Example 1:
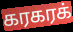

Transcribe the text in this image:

கரகரக்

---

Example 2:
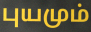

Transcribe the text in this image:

புயமும்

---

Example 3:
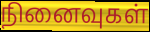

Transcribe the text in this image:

நினைவுகள்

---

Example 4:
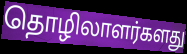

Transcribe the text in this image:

தொழிலாளர்களது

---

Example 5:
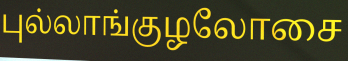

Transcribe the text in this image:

புல்லாங்குழலோசை